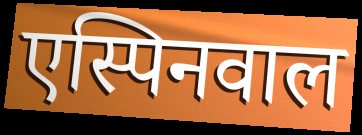
एस्पिनवाल